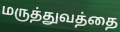
மருத்துவத்தை